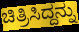
ಚಿತ್ರಿಸಿದ್ದನ್ನು